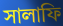
সালাফি